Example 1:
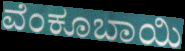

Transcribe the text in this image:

ವೆಂಕೂಬಾಯಿ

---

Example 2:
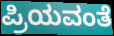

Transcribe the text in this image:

ಪ್ರಿಯವಂತೆ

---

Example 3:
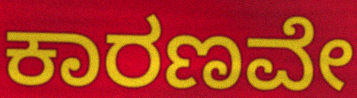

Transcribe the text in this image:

ಕಾರಣವೇ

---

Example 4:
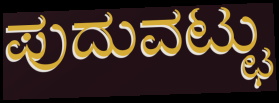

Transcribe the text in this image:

ಪುದುವಟ್ಟು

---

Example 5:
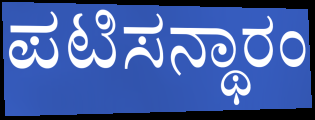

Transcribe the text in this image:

ಪಟಿಸನ್ಥಾರಂ